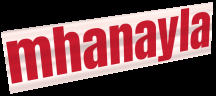
mhanayla